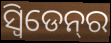
ସ୍ୱିଡେନ୍‌ର